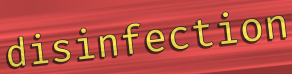
disinfection